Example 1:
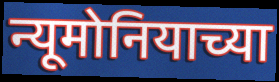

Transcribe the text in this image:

न्यूमोनियाच्या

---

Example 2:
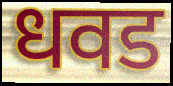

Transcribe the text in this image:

धवड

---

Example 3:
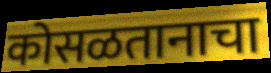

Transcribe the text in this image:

कोसळतानाचा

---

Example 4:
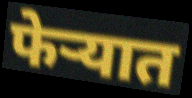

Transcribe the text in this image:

फेऱ्यात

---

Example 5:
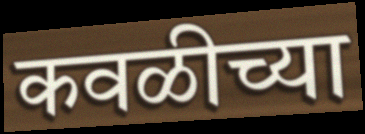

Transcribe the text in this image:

कवळीच्या